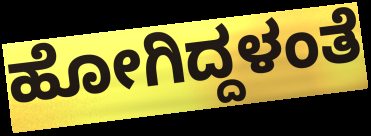
ಹೋಗಿದ್ದಳಂತೆ